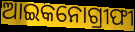
ଆଇକନୋଗ୍ରୀଫୀ